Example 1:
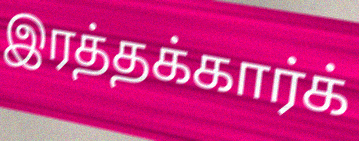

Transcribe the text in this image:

இரத்தக்கார்க்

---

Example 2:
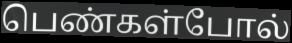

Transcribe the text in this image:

பெண்கள்போல்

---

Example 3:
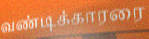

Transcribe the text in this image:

வண்டிக்காரரை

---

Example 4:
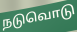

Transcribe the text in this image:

நடுவொடு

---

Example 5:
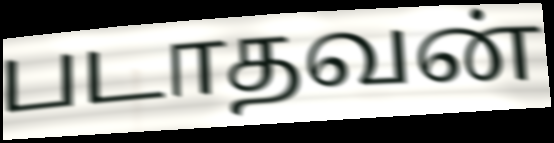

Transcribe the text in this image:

படாதவன்